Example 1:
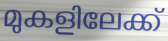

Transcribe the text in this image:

മുകളിലേക്ക്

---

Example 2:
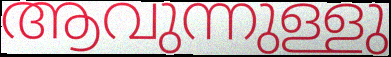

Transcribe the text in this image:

ആവുന്നുള്ളു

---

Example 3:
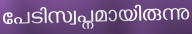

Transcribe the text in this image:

പേടിസ്വപ്നമായിരുന്നു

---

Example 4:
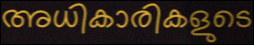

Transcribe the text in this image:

അധികാരികളുടെ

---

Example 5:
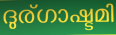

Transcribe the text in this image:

ദുര്ഗാഷ്ടമി